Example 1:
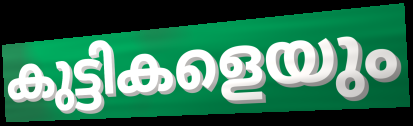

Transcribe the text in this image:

കുട്ടികളെയും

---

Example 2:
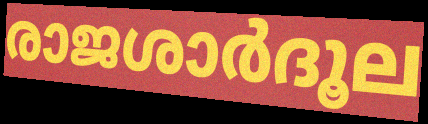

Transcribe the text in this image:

രാജശാർദൂല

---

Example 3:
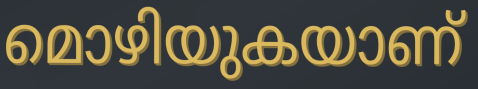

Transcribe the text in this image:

മൊഴിയുകയാണ്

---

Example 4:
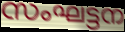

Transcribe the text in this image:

സംഘട്ടന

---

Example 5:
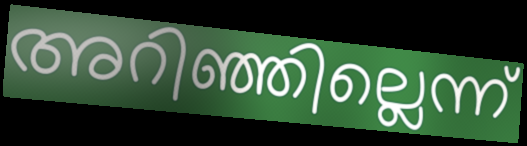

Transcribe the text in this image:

അറിഞ്ഞില്ലെന്ന്